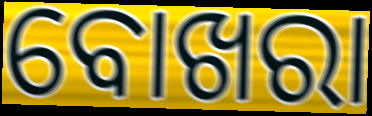
ବୋଖରା